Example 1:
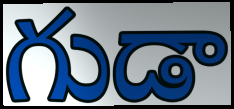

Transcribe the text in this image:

గుడా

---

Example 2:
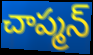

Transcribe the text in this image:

చాప్మన్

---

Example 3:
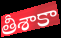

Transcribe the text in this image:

తీశాకా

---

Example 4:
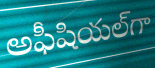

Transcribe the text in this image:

అఫీషియల్‌గా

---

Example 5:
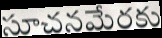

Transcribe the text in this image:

సూచనమేరకు